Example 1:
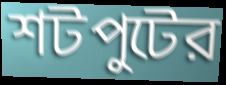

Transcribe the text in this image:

শটপুটের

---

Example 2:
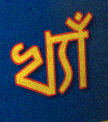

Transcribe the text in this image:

খ্যাঁ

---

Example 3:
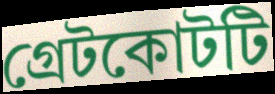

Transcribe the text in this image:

গ্রেটকোটটি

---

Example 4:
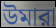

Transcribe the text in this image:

উমারা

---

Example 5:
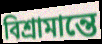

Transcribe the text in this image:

বিশ্রামান্তে